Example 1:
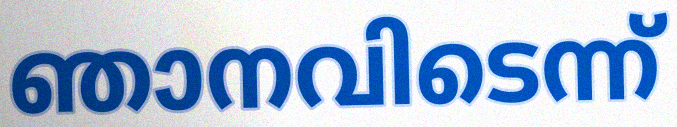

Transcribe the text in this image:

ഞാനവിടെന്ന്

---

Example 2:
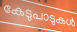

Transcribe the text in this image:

കേടുപാടുകൾ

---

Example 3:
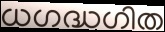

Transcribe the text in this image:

ധഗദ്ധഗിത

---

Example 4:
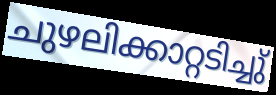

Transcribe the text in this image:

ചുഴലിക്കാറ്റടിച്ചു്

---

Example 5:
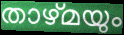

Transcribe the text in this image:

താഴ്മയും